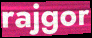
rajgor